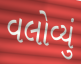
વલોવ્યું